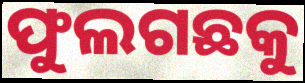
ଫୁଲଗଛକୁ